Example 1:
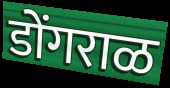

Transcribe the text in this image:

डोंगराळ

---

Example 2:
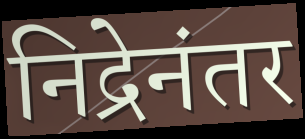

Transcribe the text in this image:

निद्रेनंतर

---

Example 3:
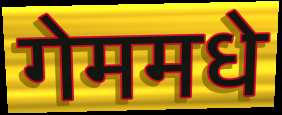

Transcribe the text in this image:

गेममधे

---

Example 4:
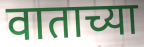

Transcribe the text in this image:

वाताच्या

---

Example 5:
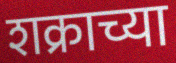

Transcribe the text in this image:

शक्राच्या